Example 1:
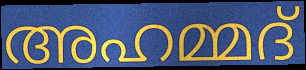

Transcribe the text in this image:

അഹമ്മദ്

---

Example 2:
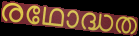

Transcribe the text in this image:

രഥോദ്ധത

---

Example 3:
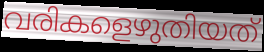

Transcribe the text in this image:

വരികളെഴുതിയത്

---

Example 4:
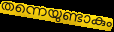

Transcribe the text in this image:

തന്നെയുണ്ടാകും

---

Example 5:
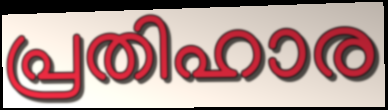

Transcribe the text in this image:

പ്രതിഹാര